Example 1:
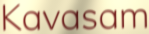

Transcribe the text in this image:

Kavasam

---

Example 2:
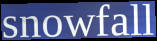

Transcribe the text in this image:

snowfall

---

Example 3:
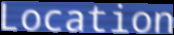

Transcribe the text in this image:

Location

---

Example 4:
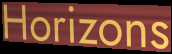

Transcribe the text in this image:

Horizons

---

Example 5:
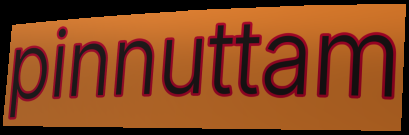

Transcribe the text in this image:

pinnuttam